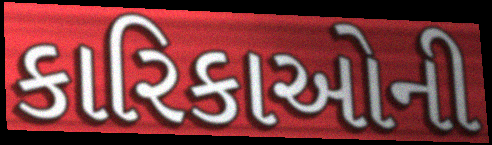
કારિકાઓની